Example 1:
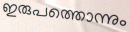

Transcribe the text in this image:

ഇരുപത്തൊന്നും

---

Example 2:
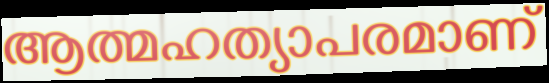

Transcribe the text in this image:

ആത്മഹത്യാപരമാണ്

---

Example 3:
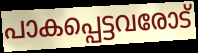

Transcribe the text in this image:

പാകപ്പെട്ടവരോട്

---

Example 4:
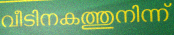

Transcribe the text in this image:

വീടിനകത്തുനിന്ന്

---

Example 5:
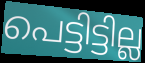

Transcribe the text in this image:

പെട്ടിട്ടില്ല